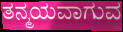
ತನ್ಮಯವಾಗುವ